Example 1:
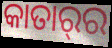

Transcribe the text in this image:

କାତାର୍‌ର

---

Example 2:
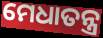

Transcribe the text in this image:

ମେଧାତନ୍ତ୍ର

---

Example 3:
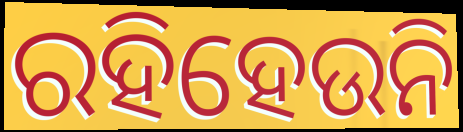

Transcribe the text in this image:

ରହିହେଉନି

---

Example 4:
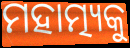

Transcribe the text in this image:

ମହାତ୍ମ୍ୟକୁ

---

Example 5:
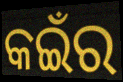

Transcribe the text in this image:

କଇଁର